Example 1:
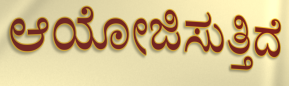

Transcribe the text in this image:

ಆಯೋಜಿಸುತ್ತಿದೆ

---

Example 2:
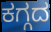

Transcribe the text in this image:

ಕಗ್ಗದ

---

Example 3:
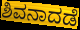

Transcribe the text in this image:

ಶಿವನಾದಡೆ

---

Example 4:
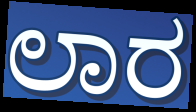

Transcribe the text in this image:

ಲಾರ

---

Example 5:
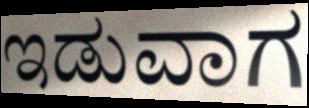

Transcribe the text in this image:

ಇಡುವಾಗ